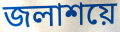
জলাশয়ে